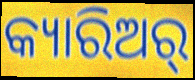
କ୍ୟାରିଅର୍